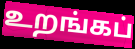
உறங்கப்